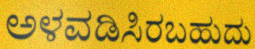
ಅಳವಡಿಸಿರಬಹುದು